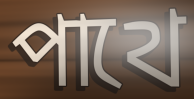
পাথে